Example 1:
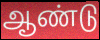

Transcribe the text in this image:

ஆண்டு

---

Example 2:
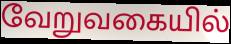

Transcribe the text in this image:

வேறுவகையில்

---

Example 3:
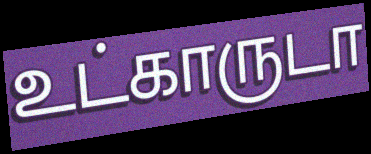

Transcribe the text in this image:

உட்காருடா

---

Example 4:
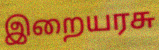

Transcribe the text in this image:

இறையரசு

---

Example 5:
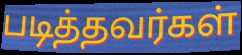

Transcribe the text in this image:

படித்தவர்கள்